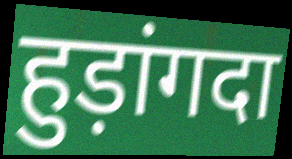
हुड़ांगदा